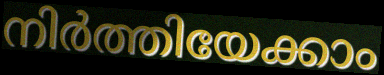
നിർത്തിയേക്കാം